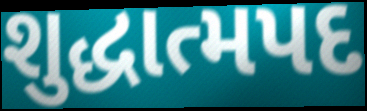
શુદ્ધાત્મપદ